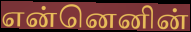
என்னெனின்